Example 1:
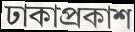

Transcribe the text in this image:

ঢাকাপ্রকাশ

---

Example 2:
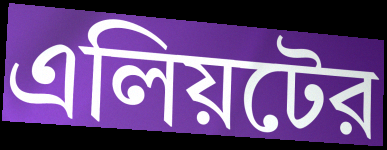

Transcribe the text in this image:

এলিয়টের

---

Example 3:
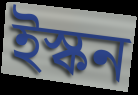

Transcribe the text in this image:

ইস্কন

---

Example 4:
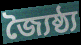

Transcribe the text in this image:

জ্যৈষ্ঠ্য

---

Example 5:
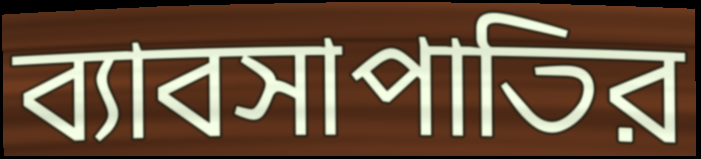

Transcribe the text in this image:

ব্যাবসাপাতির